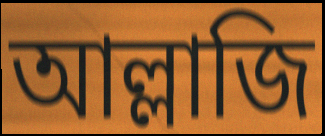
আল্লাজি